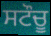
ਸਟੌਚੂ